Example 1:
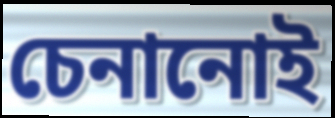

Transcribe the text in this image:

চেনানোই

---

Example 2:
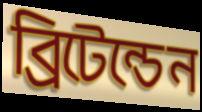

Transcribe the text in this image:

ব্রিটেন্ডেন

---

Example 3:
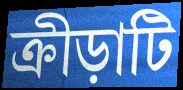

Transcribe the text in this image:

ক্রীড়াটি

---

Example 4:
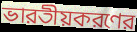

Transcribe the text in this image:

ভারতীয়করণের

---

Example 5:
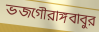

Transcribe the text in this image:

ভজগৌরাঙ্গবাবুর